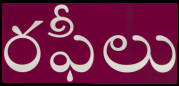
రఫీలు